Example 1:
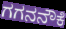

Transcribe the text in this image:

ಗಗನನೌಕೆ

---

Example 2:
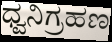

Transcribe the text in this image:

ಧ್ವನಿಗ್ರಹಣ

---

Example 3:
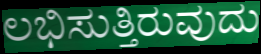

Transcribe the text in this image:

ಲಭಿಸುತ್ತಿರುವುದು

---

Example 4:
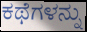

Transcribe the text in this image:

ಕಥೆಗಳನ್ನು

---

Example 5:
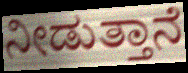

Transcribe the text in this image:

ನೀಡುತ್ತಾನೆ